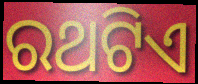
ରଥଟିଏ